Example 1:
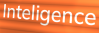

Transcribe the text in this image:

Inteligence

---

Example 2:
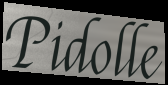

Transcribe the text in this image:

Pidolle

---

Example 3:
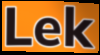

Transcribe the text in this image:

Lek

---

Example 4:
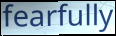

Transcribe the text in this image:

fearfully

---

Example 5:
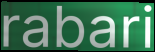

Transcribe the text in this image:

rabari